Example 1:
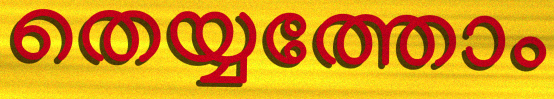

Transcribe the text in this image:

തെയ്യത്തോം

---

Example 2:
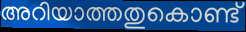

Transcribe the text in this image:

അറിയാത്തതുകൊണ്ട്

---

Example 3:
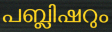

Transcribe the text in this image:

പബ്ലിഷറും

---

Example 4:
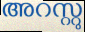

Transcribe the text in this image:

അറസ്റ്റു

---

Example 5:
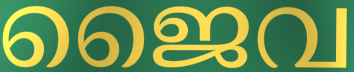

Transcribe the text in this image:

ജൈവ